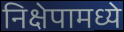
निक्षेपामध्ये